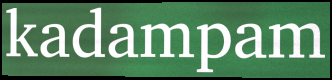
kadampam